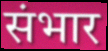
संभार